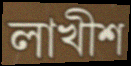
লাখীশ